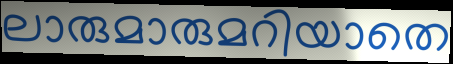
ലാരുമാരുമറിയാതെ